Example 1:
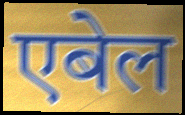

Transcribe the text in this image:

एबेल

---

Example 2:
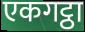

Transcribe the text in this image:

एकगट्ठा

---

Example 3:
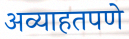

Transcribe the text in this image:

अव्याहतपणे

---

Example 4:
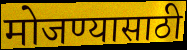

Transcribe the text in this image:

मोजण्यासाठी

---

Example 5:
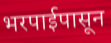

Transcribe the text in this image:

भरपाईपासून